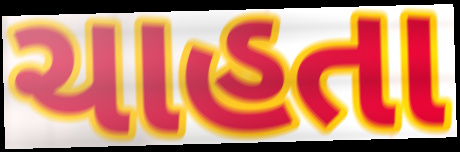
ચાહતા